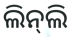
ଲିନ୍‌ଲି